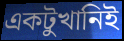
একটুখানিই